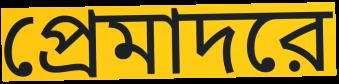
প্রেমাদরে